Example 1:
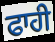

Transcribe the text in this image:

ਫਾਹੀ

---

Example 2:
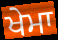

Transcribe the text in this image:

ਖੇਮਾ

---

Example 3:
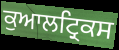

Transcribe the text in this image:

ਕੁਆਲਟ੍ਰਿਕਸ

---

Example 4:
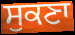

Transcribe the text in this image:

ਸੁਕਣਾ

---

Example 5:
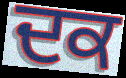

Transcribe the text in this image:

ਦਕ